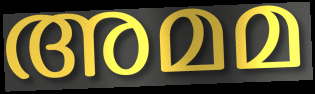
അമമ